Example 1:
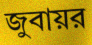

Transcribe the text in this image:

জুবায়র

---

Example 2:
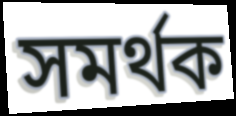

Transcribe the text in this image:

সমর্থক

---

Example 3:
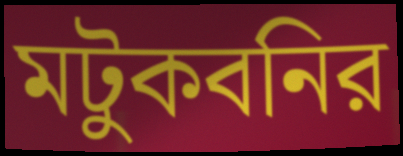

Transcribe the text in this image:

মটুকবনির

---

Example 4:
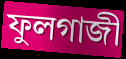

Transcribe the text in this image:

ফুলগাজী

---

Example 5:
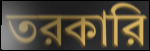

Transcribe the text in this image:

তরকারি